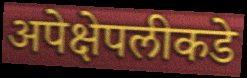
अपेक्षेपलीकडे